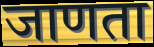
जाणता